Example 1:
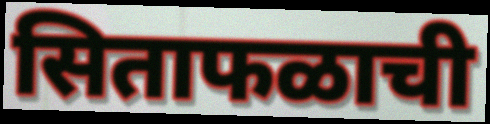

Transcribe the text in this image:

सिताफळाची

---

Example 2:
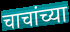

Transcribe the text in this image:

चाचांच्या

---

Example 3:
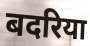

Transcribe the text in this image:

बदरिया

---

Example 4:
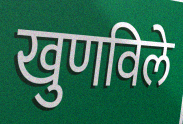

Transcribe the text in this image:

खुणविले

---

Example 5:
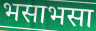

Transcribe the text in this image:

भसाभसा